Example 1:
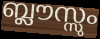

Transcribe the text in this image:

ബ്ലൗസ്സും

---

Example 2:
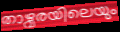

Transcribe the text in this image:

താഴ്വരയിലെയും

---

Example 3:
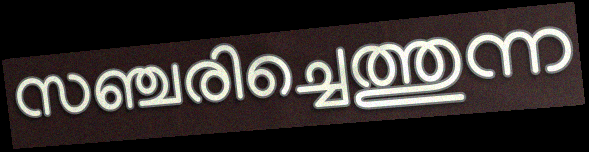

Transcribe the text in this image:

സഞ്ചരിച്ചെത്തുന്ന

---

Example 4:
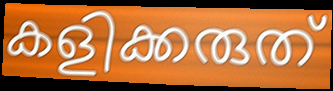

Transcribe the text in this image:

കളിക്കരുത്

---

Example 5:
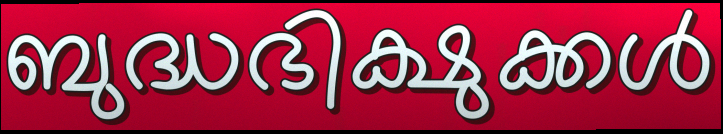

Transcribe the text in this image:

ബുദ്ധഭിക്ഷുക്കൾ